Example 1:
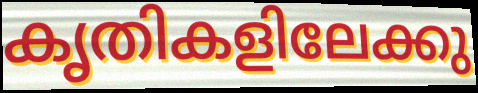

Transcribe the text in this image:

കൃതികളിലേക്കു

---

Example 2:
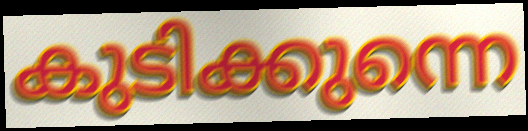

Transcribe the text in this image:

കുടിക്കുന്നെ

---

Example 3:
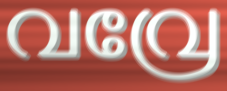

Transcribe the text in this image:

വവ്രേ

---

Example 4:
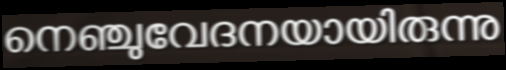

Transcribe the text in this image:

നെഞ്ചുവേദനയായിരുന്നു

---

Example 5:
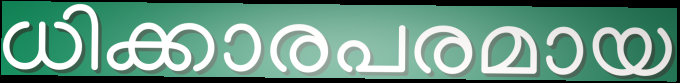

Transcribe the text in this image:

ധിക്കാരപരമായ